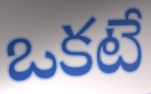
ఒకటే